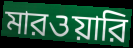
মারওয়ারি